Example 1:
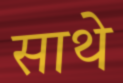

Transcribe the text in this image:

साथे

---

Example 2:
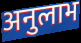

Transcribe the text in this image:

अनुलाभ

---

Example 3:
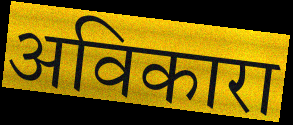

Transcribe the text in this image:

अविकारा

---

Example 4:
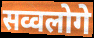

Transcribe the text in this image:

सव्वलोगे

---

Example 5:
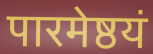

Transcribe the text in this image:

पारमेष्ठयं